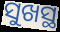
ସୁଖସ୍ଥ